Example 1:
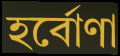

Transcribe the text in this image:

হর্বোণা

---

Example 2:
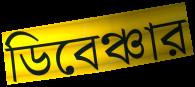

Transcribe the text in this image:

ডিবেঞ্চার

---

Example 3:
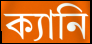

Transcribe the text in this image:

ক্যানি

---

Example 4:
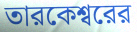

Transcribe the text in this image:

তারকেশ্বরের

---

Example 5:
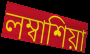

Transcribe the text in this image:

লম্বাশিয়া